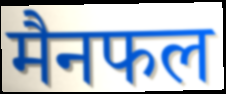
मैनफल